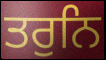
ਤਰੁਨਿ